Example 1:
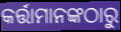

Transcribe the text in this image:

କର୍ତ୍ତାମାନଙ୍କଠାରୁ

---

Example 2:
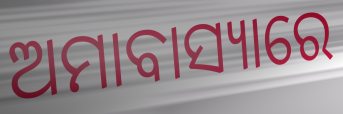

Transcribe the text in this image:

ଅମାବାସ୍ୟାରେ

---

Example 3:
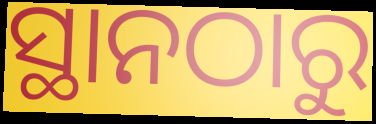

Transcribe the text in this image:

ସ୍ଥାନଠାରୁ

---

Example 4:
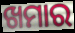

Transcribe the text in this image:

ଖମାର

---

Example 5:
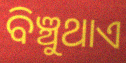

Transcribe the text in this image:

ବିଞ୍ଚୁଥାଏ